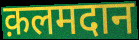
क़लमदान